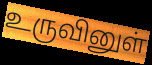
உருவினுள்